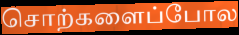
சொற்களைப்போல